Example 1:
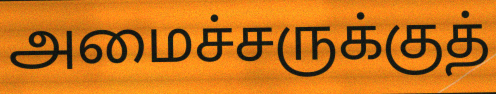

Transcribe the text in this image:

அமைச்சருக்குத்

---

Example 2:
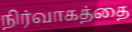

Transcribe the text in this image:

நிர்வாகத்தை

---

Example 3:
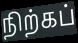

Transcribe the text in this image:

நிற்கப்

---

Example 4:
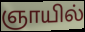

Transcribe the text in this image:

ஞாயில்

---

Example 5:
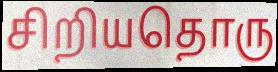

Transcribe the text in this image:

சிறியதொரு